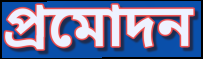
প্রমোদন